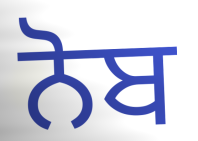
ਨੋਬ